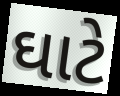
ઘાટે